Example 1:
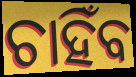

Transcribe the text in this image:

ଚାହିଁବ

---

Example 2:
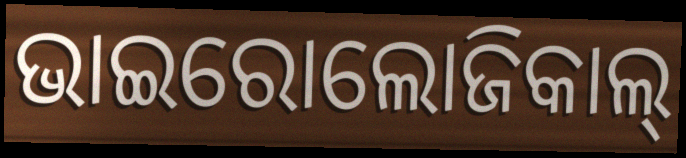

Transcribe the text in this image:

ଭାଇରୋଲୋଜିକାଲ୍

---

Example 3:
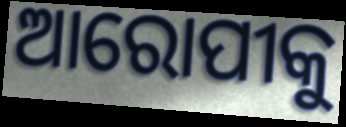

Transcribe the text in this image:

ଆରୋପୀକୁ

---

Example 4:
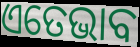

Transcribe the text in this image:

ଏତେଭାବ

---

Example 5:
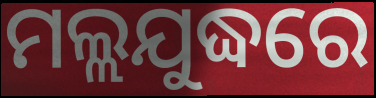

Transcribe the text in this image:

ମଲ୍ଲଯୁଦ୍ଧରେ